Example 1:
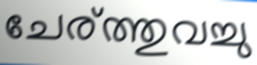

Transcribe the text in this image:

ചേര്ത്തുവച്ചു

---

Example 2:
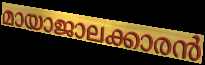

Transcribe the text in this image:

മായാജാലക്കാരൻ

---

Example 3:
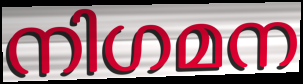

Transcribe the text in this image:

നിഗമന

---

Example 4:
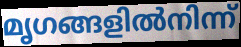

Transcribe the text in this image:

മൃഗങ്ങളിൽനിന്ന്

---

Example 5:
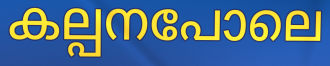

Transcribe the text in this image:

കല്പനപോലെ